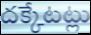
దక్కేటట్లు